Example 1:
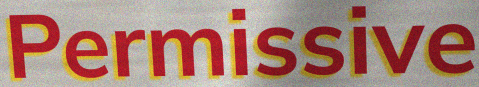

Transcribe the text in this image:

Permissive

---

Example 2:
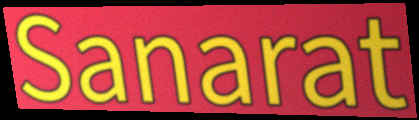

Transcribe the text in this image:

Sanarat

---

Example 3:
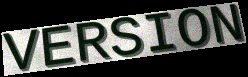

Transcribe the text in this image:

VERSION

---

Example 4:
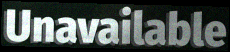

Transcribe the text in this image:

Unavailable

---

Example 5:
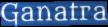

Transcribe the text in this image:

Ganatra